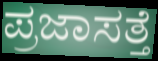
ಪ್ರಜಾಸತ್ತೆ